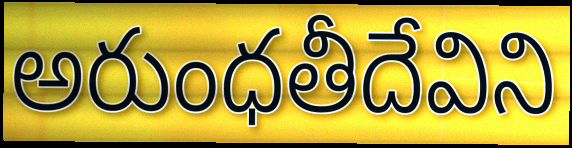
అరుంధతీదేవిని